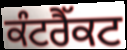
ਕੰਟਰੈੱਕਟ